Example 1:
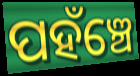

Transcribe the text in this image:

ପହଁଞ୍ଚେ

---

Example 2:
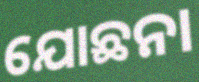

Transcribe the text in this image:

ଯୋଛନା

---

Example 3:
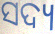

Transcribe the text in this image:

ସଦ୍ଯ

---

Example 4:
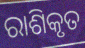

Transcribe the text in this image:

ରାଶିକୃତ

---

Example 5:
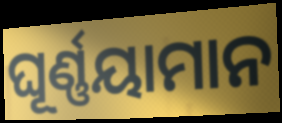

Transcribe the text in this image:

ଘୂର୍ଣ୍ଣୟାମାନ